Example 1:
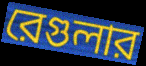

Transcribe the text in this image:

রেগুলার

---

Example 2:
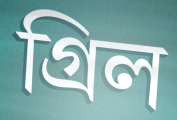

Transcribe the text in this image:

গ্রিল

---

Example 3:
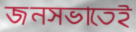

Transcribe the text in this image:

জনসভাতেই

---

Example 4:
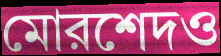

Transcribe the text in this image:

মোরশেদও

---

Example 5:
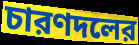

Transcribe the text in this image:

চারণদলের